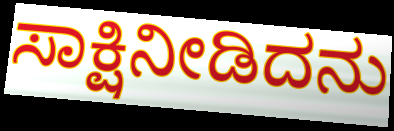
ಸಾಕ್ಷಿನೀಡಿದನು